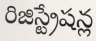
రిజిస్ట్రేషన్ల